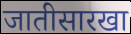
जातीसारखा